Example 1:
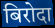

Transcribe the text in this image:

बिरोदा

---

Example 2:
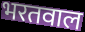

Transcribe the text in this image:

भरतवाल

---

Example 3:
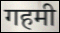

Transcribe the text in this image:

गहमी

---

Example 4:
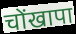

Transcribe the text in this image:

चोंखापा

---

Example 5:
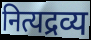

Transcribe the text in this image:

नित्यद्रव्य